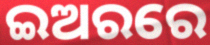
ଇଅରରେ